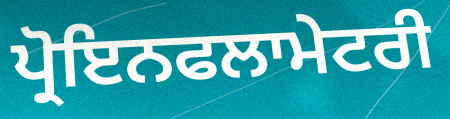
ਪ੍ਰੋਇਨਫਲਾਮੇਟਰੀ